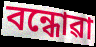
বন্ধোৱা